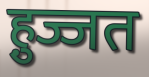
ह़ुज्जत